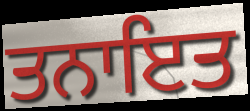
ਤਨਾਇਤ